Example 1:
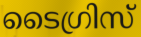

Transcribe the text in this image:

ടൈഗ്രിസ്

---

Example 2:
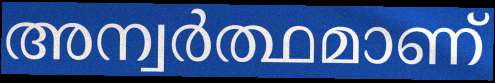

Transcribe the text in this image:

അന്വർത്ഥമാണ്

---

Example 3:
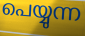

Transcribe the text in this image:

പെയ്യുന്ന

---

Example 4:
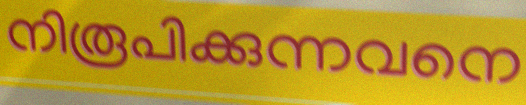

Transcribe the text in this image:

നിരൂപിക്കുന്നവനെ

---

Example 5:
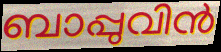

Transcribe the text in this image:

ബാപ്പുവിൻ